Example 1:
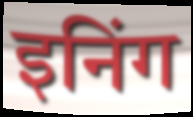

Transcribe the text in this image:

इनिंग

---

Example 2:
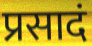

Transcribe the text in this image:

प्रसादं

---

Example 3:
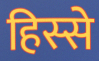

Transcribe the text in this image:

हिस्‍से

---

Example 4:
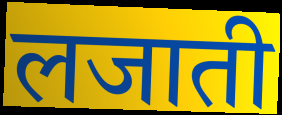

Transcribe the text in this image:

लजाती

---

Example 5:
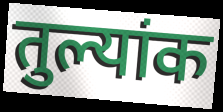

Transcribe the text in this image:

तुल्यांक